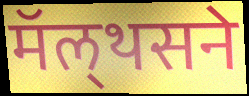
मॅल्थसने